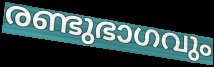
രണ്ടുഭാഗവും